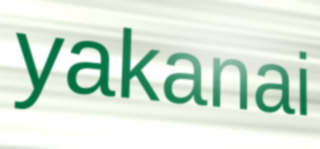
yakanai